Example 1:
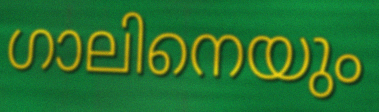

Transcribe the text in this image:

ഗാലിനെയും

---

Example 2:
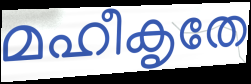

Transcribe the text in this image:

മഹീകൃതേ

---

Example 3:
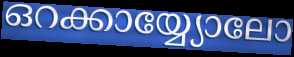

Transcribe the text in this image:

ഒറക്കായ്യ്യോലോ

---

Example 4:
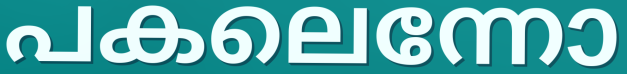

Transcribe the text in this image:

പകലെന്നോ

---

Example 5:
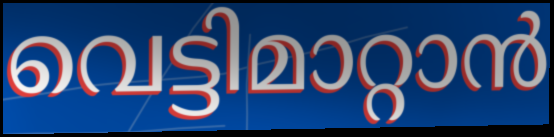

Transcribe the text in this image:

വെട്ടിമാറ്റാൻ